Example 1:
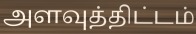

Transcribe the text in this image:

அளவுத்திட்டம்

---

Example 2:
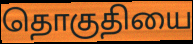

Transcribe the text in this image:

தொகுதியை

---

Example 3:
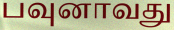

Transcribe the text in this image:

பவுனாவது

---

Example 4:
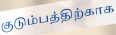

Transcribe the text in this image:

குடும்பத்திற்காக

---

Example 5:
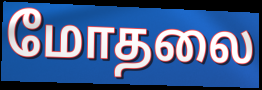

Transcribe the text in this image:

மோதலை